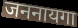
जननायगा